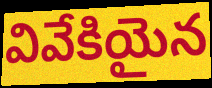
వివేకియైన